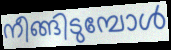
നീങ്ങിടുമ്പോൾ